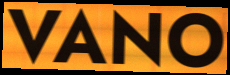
VANO